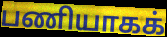
பணியாகக்